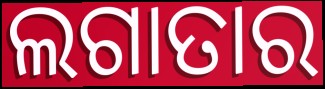
ଲଗାତାର